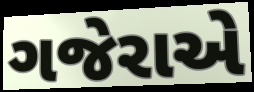
ગજેરાએ